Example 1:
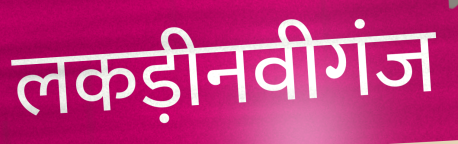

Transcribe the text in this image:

लकड़ीनवीगंज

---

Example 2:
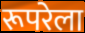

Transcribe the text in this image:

रूपरेला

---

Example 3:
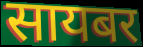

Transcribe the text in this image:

सायबर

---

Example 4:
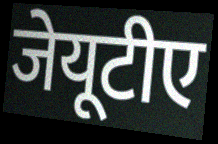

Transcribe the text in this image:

जेयूटीए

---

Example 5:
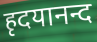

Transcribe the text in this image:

हृदयानन्द